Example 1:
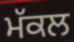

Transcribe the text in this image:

ਮੱਕਲ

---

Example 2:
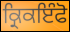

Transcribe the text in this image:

ਕ੍ਰਿਕਇੰਫੋ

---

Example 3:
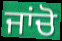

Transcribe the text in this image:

ਜਾਂਚੋ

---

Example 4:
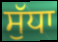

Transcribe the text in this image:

ਸੁੱਧਾ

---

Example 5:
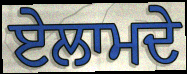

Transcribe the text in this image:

ਏਲਾਮਦੇ